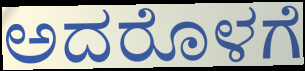
ಅದರೊಳಗೆ